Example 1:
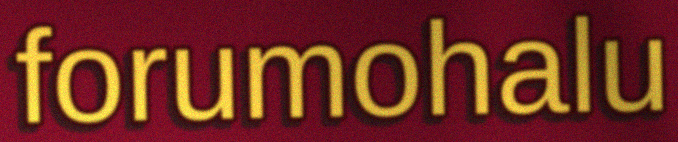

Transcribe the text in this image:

forumohalu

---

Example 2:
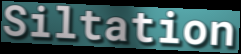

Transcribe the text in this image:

Siltation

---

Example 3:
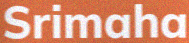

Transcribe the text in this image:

Srimaha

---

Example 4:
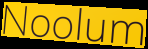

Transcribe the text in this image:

Noolum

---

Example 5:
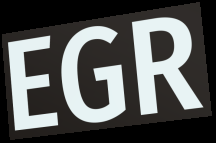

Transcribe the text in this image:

EGR